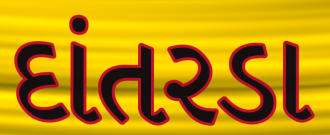
દાંતરડા